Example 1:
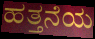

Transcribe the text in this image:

ಹತ್ತನೆಯ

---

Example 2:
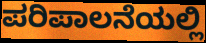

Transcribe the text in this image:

ಪರಿಪಾಲನೆಯಲ್ಲಿ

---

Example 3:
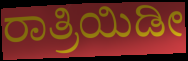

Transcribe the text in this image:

ರಾತ್ರಿಯಿಡೀ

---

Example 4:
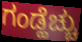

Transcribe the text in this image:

ಗಂಡ್ಹೆಚ್ಚು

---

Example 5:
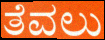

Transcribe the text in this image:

ತೆವಲು